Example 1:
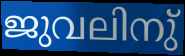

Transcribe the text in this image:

ജുവലിനു്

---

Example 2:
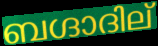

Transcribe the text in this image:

ബഗ്ദാദില്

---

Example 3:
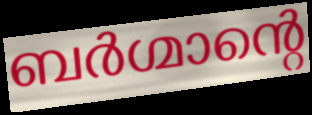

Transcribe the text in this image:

ബർഗ്മാന്റെ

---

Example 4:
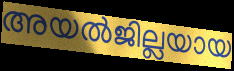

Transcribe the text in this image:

അയൽജില്ലയായ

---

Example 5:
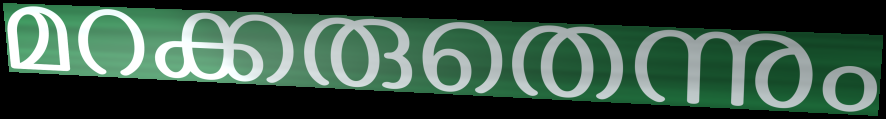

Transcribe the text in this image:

മറക്കരുതെന്നും